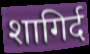
शागिर्द